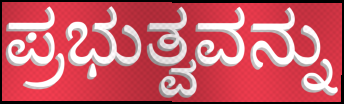
ಪ್ರಭುತ್ವವನ್ನು